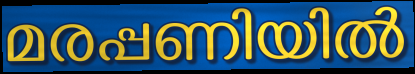
മരപ്പണിയിൽ